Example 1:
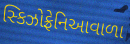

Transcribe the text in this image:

સ્કિઝોફ્રેનિઆવાળા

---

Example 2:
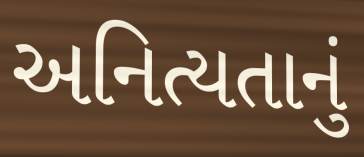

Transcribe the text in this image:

અનિત્યતાનું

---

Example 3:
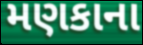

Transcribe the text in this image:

મણકાના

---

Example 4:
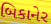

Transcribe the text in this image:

બિકાનેર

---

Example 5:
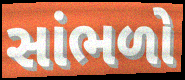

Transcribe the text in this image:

સાંભળો